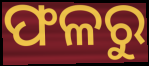
ଫଳରୁ